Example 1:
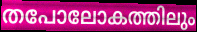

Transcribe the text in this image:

തപോലോകത്തിലും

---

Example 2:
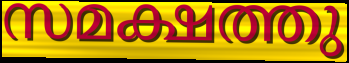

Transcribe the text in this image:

സമക്ഷത്തു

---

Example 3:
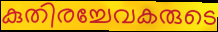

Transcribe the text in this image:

കുതിരച്ചേവകരുടെ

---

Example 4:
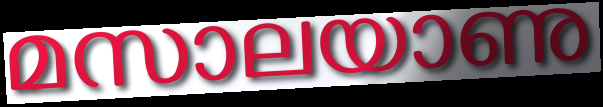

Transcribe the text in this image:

മസാലയാണു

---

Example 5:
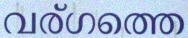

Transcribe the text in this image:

വര്ഗത്തെ